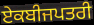
ਏਕਬੀਜਪਤਰੀ